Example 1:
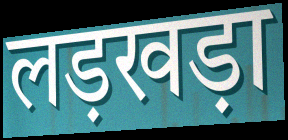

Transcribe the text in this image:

लड़खड़ा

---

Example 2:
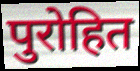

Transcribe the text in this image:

पुरोहित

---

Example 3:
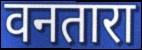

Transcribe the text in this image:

वनतारा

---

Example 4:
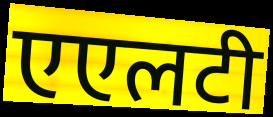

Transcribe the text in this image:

एएलटी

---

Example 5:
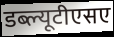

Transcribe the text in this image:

डब्ल्यूटीएसए